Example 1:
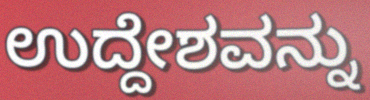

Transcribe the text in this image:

ಉದ್ದೇಶವನ್ನು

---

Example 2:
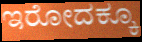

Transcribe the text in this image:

ಇರೋದಕ್ಕೂ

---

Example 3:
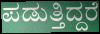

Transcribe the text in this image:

ಪಡುತ್ತಿದ್ದರೆ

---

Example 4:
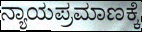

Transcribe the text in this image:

ನ್ಯಾಯಪ್ರಮಾಣಕ್ಕೆ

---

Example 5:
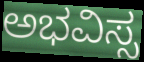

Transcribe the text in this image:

ಅಭವಿಸ್ಸ